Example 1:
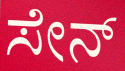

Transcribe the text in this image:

ಸೇನ್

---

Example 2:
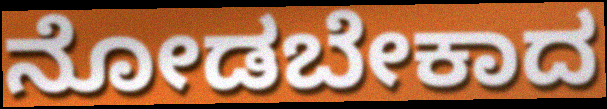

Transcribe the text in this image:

ನೋಡಬೇಕಾದ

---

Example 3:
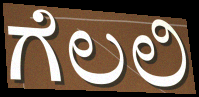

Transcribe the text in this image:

ಗೆಲಲಿ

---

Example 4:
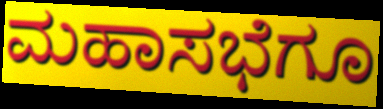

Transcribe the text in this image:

ಮಹಾಸಭೆಗೂ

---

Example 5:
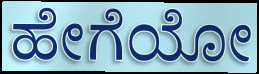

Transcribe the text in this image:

ಹೇಗೆಯೋ